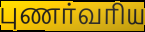
புணர்வரிய